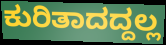
ಕುರಿತಾದದ್ದಲ್ಲ